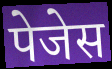
पेजेस